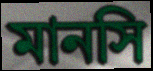
মানসি